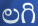
లగి